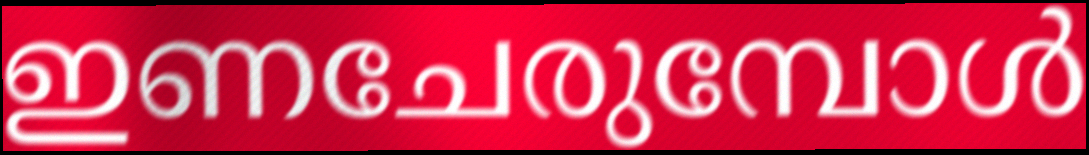
ഇണചേരുമ്പോൾ